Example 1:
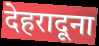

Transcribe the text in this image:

देहरादूना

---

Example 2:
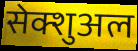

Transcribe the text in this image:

सेक्शुअल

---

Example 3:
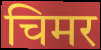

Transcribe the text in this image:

चिमर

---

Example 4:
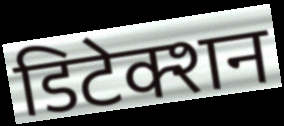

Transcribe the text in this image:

डिटेक्शन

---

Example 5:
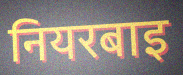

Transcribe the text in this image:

नियरबाइ